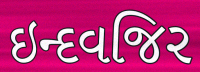
ઇન્દવજિર